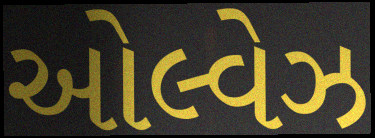
ઓલ્વેઝ